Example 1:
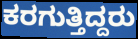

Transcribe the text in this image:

ಕರಗುತ್ತಿದ್ದರು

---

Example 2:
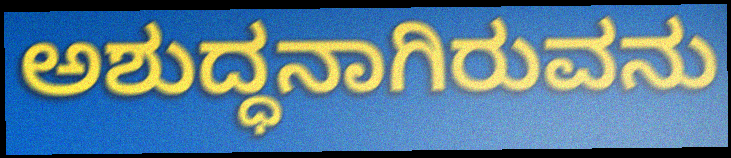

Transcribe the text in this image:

ಅಶುದ್ಧನಾಗಿರುವನು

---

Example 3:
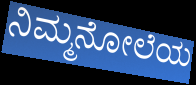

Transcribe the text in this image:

ನಿಮ್ಮನೋಲೆಯ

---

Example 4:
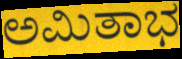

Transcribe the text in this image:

ಅಮಿತಾಭ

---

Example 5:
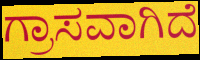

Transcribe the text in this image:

ಗ್ರಾಸವಾಗಿದೆ